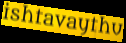
ishtavaythu